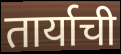
तार्याची